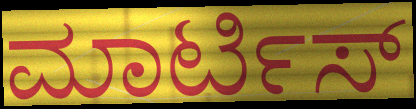
ಮಾರ್ಟಿಸ್